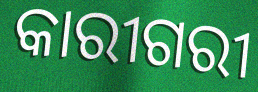
କାରୀଗରୀ